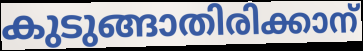
കുടുങ്ങാതിരിക്കാന്